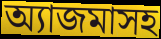
অ্যাজমাসহ